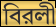
বিরলী